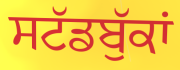
ਸਟੱਡਬੁੱਕਾਂ